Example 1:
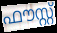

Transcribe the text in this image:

ഫൗസ്റ്റ്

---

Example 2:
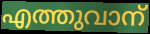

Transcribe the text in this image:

എത്തുവാന്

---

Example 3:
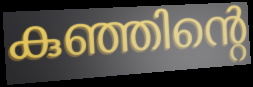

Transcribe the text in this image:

കുഞ്ഞിന്റെ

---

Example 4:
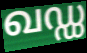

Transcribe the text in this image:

ഖഡ്ഡ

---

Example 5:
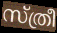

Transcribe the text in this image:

സ്ത്രീ